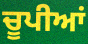
ਚੂਪੀਆਂ